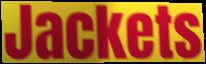
Jackets